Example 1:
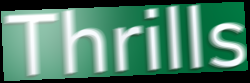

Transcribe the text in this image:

Thrills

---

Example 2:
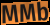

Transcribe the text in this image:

MMb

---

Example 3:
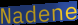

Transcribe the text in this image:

Nadene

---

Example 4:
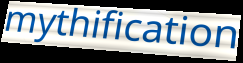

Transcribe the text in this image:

mythification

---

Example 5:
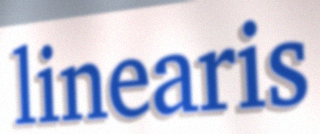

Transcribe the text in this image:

linearis